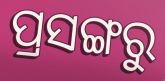
ପ୍ରସଙ୍ଗରୁ